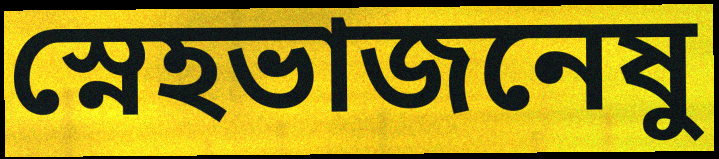
স্নেহভাজনেষু